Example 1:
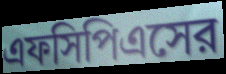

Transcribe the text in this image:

এফসিপিএসের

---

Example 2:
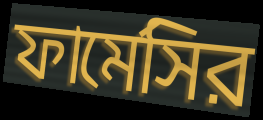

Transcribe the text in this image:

ফার্মেসির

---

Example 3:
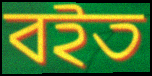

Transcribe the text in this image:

বইত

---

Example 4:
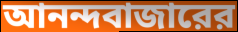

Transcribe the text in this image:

আনন্দবাজারের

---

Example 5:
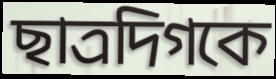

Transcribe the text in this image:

ছাত্রদিগকে